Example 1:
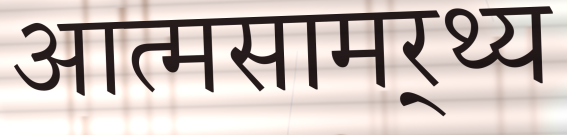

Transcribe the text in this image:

आत्मसामर्थ्य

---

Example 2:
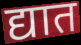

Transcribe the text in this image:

द्यात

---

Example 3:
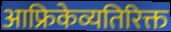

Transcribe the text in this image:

आफ्रिकेव्यतिरिक्त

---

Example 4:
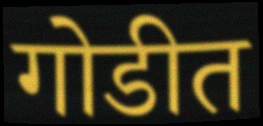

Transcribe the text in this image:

गोडीत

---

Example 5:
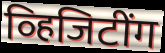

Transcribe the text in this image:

व्हिजिटींग